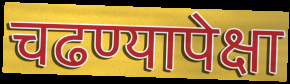
चढण्यापेक्षा